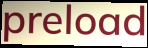
preload